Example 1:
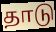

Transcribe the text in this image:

தாடு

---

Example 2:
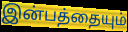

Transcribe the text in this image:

இன்பத்தையும்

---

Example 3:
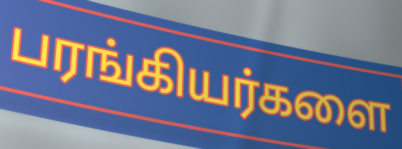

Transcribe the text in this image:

பரங்கியர்களை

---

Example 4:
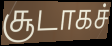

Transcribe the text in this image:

சூடாகச்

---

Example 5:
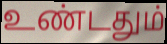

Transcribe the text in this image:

உண்டதும்